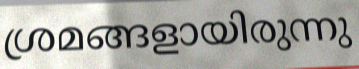
ശ്രമങ്ങളായിരുന്നു